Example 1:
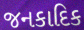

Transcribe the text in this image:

જનકાદિક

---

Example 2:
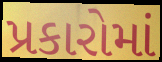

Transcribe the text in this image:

પ્રકારોમાં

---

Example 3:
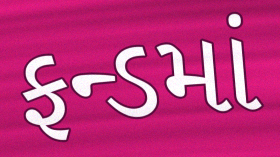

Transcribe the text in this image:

ફન્ડમાં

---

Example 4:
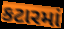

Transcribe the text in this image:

કટારમાં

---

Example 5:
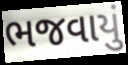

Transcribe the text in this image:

ભજવાયું